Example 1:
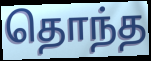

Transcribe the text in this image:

தொந்த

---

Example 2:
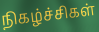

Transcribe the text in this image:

நிகழ்ச்சிகள்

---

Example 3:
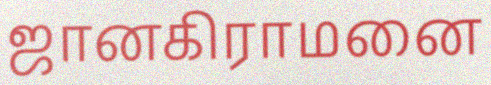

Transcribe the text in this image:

ஜானகிராமனை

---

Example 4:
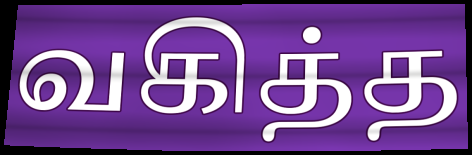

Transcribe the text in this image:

வகித்த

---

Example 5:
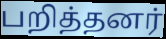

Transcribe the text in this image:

பறித்தனர்